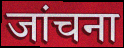
जांचना